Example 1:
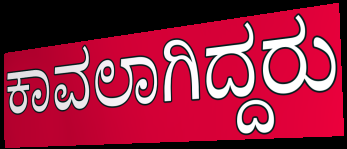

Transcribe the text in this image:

ಕಾವಲಾಗಿದ್ದರು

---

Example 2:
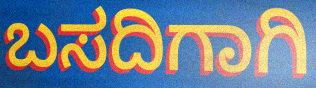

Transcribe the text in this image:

ಬಸದಿಗಾಗಿ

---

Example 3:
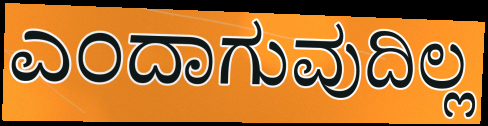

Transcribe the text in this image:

ಎಂದಾಗುವುದಿಲ್ಲ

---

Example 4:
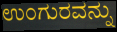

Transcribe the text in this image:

ಉಂಗುರವನ್ನು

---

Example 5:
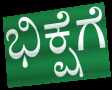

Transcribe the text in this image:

ಭಿಕ್ಷೆಗೆ